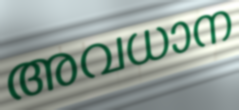
അവധാന